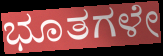
ಭೂತಗಳೇ